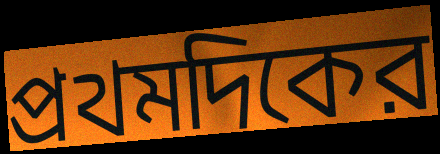
প্রথমদিকের